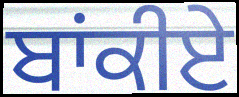
ਬਾਂਕੀਏ